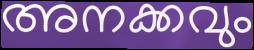
അനക്കവും